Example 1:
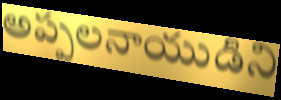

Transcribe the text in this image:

అప్పలనాయుడిని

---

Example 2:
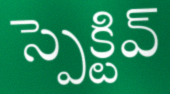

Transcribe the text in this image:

స్పెక్టివ్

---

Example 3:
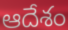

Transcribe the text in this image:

ఆదేశం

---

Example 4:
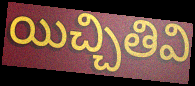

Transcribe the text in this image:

యిచ్చితివి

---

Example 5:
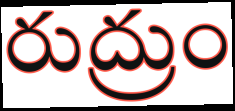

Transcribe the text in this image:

రుద్రుం